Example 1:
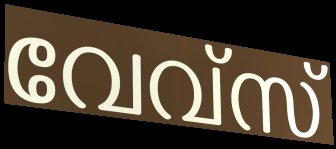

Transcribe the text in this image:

വേവ്സ്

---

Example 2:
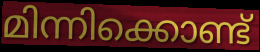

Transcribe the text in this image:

മിന്നിക്കൊണ്ട്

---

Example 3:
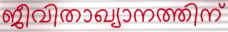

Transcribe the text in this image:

ജീവിതാഖ്യാനത്തിന്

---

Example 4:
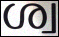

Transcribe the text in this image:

ശ്വ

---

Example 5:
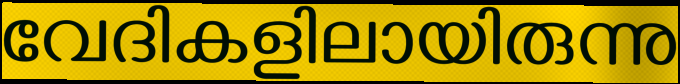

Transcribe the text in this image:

വേദികളിലായിരുന്നു